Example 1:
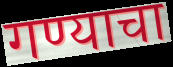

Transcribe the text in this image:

गण्याचा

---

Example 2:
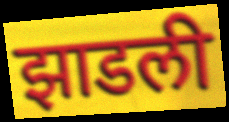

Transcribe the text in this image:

झाडली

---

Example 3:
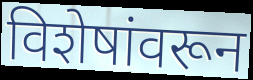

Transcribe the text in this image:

विशेषांवरून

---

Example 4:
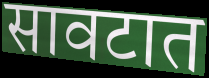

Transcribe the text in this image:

सावटात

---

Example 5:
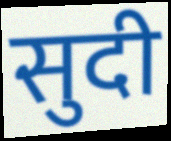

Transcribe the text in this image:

सुदी